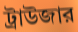
ট্রাউজার